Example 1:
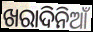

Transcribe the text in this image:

ଖରାଦିନିଆଁ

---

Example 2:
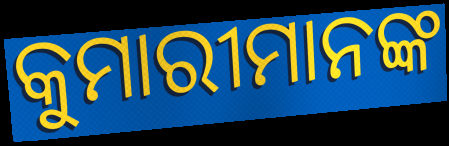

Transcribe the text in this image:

କୁମାରୀମାନଙ୍କ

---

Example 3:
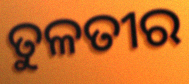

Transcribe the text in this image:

ତୁଳତୀର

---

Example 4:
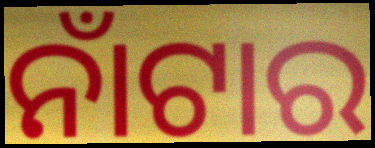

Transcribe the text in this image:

ନାଁଟାର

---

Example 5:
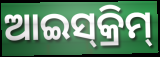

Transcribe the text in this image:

ଆଇସ୍‍କ୍ରିମ୍